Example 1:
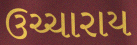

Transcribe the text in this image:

ઉચ્ચારાય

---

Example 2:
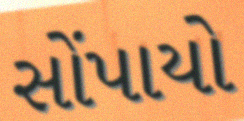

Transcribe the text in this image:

સોંપાયો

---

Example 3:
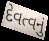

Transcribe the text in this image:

દેવત્વનું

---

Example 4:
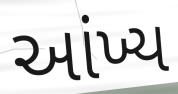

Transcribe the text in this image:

આંખ્ય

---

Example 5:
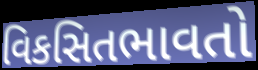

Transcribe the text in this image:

વિકસિતભાવતો